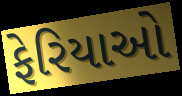
ફેરિયાઓ